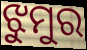
ଝୁମୁର